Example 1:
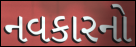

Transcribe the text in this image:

નવકારનો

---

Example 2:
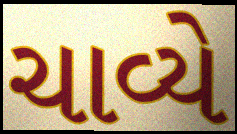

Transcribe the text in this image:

ચાવ્યે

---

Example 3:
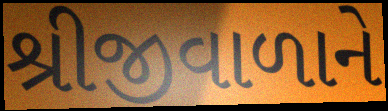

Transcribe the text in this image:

શ્રીજીવાળાને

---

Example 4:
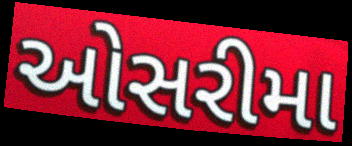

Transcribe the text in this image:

ઓસરીમા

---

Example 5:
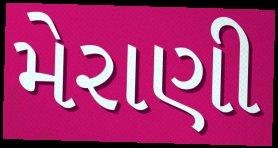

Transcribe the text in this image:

મેરાણી